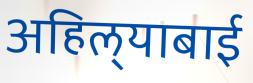
अहिल्याबाई